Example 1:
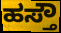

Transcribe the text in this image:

ಹಸ್ತೌ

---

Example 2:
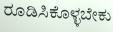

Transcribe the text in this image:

ರೂಡಿಸಿಕೊಳ್ಳಬೇಕು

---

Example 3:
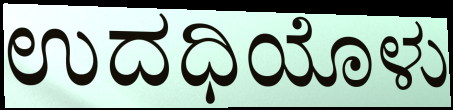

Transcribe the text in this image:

ಉದಧಿಯೊಳು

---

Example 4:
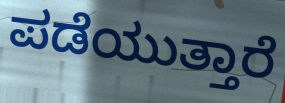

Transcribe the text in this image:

ಪಡೆಯುತ್ತಾರೆ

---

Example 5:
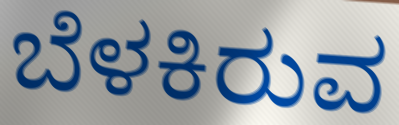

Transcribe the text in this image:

ಬೆಳಕಿರುವ